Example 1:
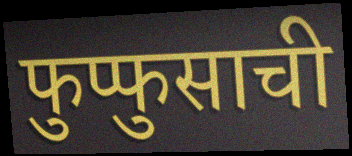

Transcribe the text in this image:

फुप्फुसाची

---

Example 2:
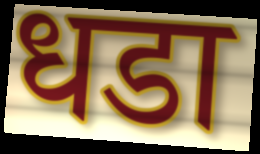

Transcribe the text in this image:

धडा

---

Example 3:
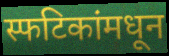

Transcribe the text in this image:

स्फटिकांमधून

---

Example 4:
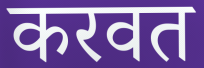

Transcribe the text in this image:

करवत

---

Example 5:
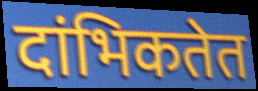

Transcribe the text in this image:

दांभिकतेत